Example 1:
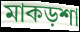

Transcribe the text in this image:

মাকড়শা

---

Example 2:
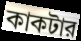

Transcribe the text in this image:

কাকটার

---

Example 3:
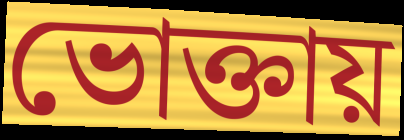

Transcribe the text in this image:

ভোক্তায়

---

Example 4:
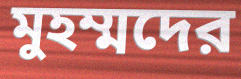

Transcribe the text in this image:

মুহম্মদের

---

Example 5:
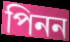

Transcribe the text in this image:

পিনন